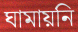
ঘামায়নি